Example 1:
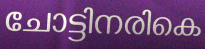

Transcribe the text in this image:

ചോട്ടിനരികെ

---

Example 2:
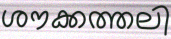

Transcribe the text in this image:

ശൗക്കത്തലി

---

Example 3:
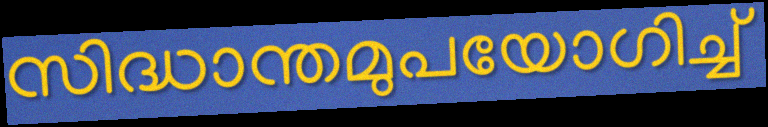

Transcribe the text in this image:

സിദ്ധാന്തമുപയോഗിച്ച്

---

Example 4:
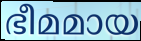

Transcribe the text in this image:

ഭീമമായ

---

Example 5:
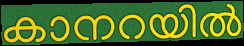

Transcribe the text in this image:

കാനറയിൽ